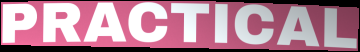
PRACTICAL